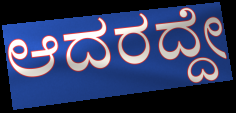
ಆದರದ್ದೇ